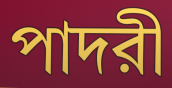
পাদরী